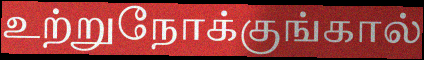
உற்றுநோக்குங்கால்